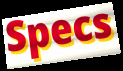
Specs